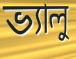
ভ্যালু